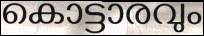
കൊട്ടാരവും